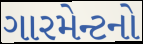
ગારમેન્ટનો